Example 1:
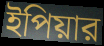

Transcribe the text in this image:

ইপিয়ার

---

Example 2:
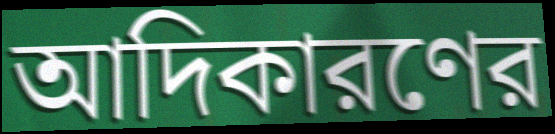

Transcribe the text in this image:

আদিকারণের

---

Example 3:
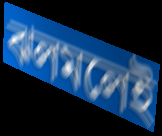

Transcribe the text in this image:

ঝলমলেই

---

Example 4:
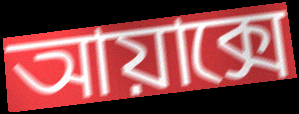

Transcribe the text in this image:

আয়াক্সে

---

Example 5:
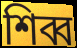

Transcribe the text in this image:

শিব্ব